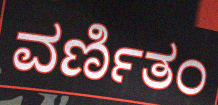
ವರ್ಣಿತಂ